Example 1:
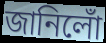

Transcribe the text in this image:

জানিলোঁ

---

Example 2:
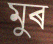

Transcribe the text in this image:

মুৰ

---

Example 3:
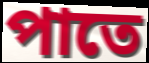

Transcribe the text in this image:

পাতে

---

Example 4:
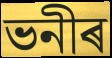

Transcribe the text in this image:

ভনীৰ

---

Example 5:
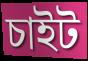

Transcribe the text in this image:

চাইট